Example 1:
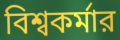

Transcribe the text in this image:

বিশ্বকর্মার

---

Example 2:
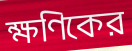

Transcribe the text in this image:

ক্ষণিকের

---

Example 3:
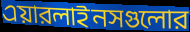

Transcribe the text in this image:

এয়ারলাইনসগুলোর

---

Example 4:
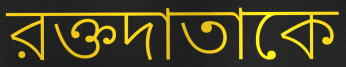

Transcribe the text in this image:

রক্তদাতাকে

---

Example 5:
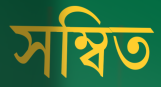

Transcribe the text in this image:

সম্বিত